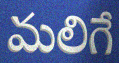
మలిగే